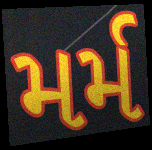
મર્મ